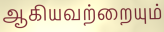
ஆகியவற்றையும்